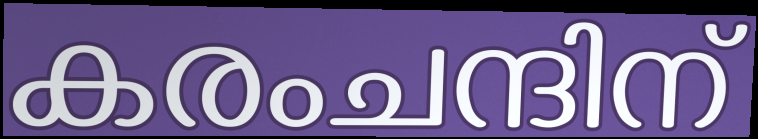
കരംചന്ദിന്